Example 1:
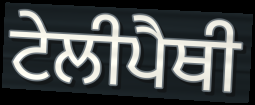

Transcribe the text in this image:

ਟੇਲੀਪੈਥੀ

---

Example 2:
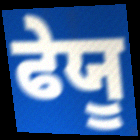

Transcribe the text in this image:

ਫੇਯੂ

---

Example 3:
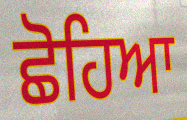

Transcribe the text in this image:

ਛੋਹਿਆ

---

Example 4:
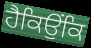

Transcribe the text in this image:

ਹੈਕਿਉਂਕਿ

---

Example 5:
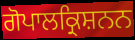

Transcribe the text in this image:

ਗੋਪਾਲਕ੍ਰਿਸ਼ਨਨ